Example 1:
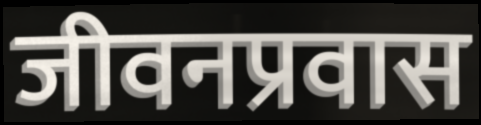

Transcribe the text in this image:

जीवनप्रवास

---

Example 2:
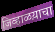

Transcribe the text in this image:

जिव्हाळय़ाचा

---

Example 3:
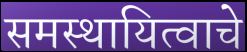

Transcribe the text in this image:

समस्थायित्वाचे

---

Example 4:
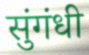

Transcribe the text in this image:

सुंगंधी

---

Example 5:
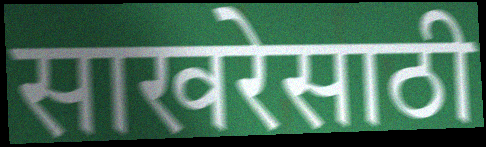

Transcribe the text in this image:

साखरेसाठी